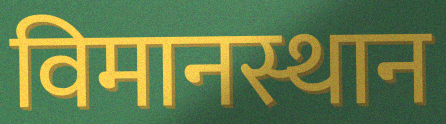
विमानस्थान